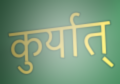
कुर्यात्